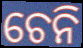
ଚେନି